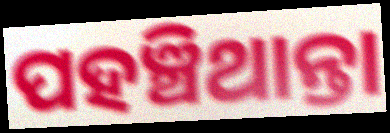
ପହଞ୍ଚିଥାନ୍ତା